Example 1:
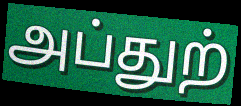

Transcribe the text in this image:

அப்துற்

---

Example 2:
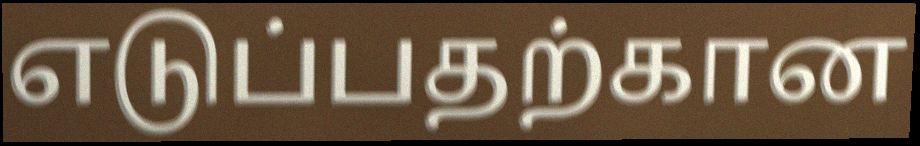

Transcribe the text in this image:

எடுப்பதற்கான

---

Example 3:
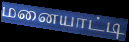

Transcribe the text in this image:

மனையாட்டி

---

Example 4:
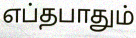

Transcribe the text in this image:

எப்தபாதும்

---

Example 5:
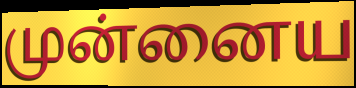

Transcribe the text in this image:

முன்னைய